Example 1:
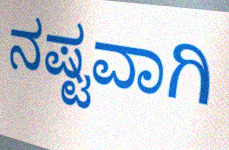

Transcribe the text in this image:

ನಷ್ಟವಾಗಿ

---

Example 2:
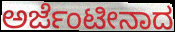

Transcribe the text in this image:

ಅರ್ಜೆಂಟೀನಾದ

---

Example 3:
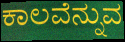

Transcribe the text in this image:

ಕಾಲವೆನ್ನುವ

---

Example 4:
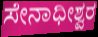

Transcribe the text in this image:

ಸೇನಾಧೀಶ್ವರ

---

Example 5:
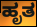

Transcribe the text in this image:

ಹೃತ